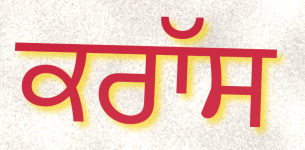
ਕਰਾੱਸ